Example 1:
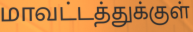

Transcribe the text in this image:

மாவட்டத்துக்குள்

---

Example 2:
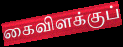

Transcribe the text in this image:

கைவிளக்குப்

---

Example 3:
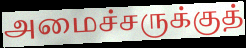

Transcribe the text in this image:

அமைச்சருக்குத்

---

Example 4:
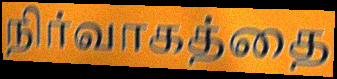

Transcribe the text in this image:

நிர்வாகத்தை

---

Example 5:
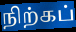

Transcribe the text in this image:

நிற்கப்